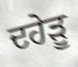
ਦਹੇੜੂ